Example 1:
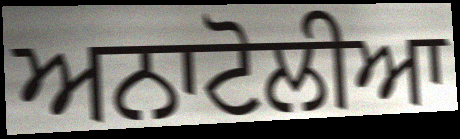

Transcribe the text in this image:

ਅਨਾਟੋਲੀਆ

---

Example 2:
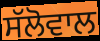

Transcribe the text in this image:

ਸੱਲੋਵਾਲ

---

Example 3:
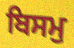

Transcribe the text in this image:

ਬਿਸਮੁ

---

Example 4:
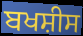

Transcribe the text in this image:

ਬਖਸ਼ੀਸ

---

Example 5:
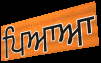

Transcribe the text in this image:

ਪਿਆਆ